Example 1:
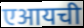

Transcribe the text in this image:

एआयची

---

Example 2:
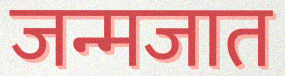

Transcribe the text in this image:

जन्मजात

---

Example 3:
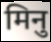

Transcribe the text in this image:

मिनु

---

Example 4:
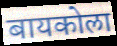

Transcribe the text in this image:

बायकोला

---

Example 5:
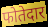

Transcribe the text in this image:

फोतेदार